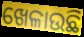
ଖେଳାଉଛି